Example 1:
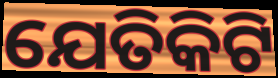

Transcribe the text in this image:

ଯେତିକିଟି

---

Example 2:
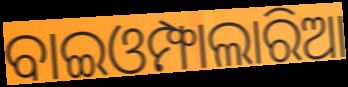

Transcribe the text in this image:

ବାଇଓମ୍ଫାଲାରିଆ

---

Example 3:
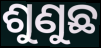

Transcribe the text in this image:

ଶୁଣୁଛ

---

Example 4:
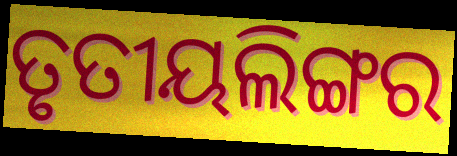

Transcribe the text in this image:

ତୃତୀୟଲିଙ୍ଗର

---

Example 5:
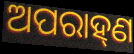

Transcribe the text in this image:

ଅପରାହ୍‍ଣ